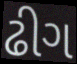
ઢીગ